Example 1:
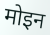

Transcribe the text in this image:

मोइन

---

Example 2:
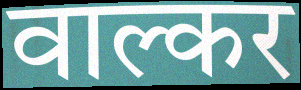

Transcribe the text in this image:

वाल्कर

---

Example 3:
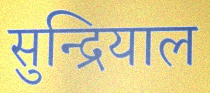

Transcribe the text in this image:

सुन्द्रियाल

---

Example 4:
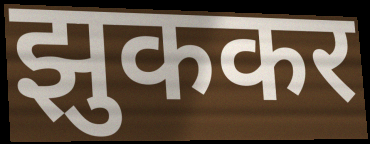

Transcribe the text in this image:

झुककर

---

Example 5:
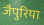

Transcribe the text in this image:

जैपुरिया